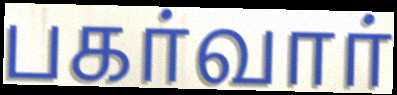
பகர்வார்